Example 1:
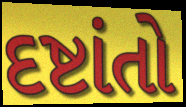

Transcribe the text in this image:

દષ્ટાંતો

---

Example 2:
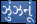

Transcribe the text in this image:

ઝુંઝનૂં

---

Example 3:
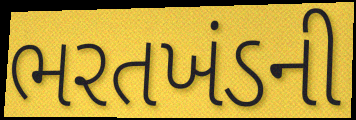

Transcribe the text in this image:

ભરતખંડની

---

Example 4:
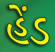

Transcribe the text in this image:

હેંડ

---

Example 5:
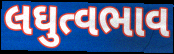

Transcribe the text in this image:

લઘુત્વભાવ